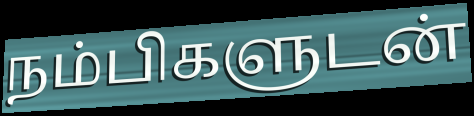
நம்பிகளுடன்